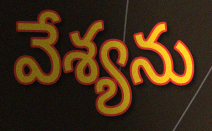
వేశ్యను